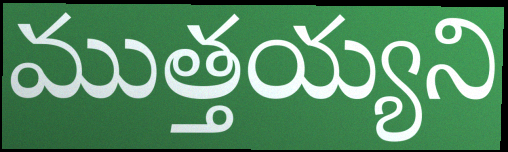
ముత్తయ్యని